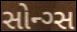
સોન્ગ્સ